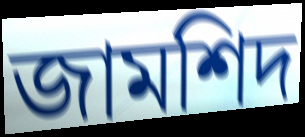
জামশিদ